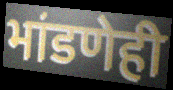
भांडणेही